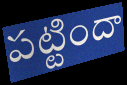
పట్టిందా